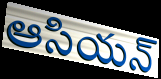
ఆసియన్